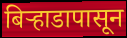
बिऱ्हाडापासून